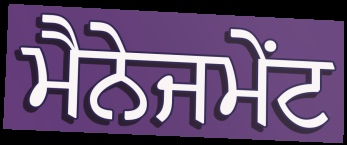
ਮੈਨੇਜਮੇੰਟ